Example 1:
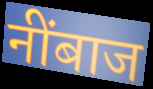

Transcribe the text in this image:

नींबाज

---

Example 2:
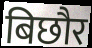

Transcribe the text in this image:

बिछौर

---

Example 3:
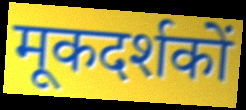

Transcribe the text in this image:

मूकदर्शकों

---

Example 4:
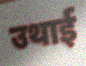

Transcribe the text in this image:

उथाई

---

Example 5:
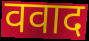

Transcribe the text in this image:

ववाद